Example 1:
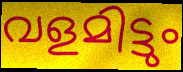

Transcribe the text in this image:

വളമിട്ടും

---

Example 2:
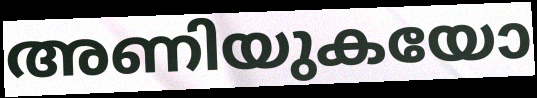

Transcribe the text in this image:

അണിയുകയോ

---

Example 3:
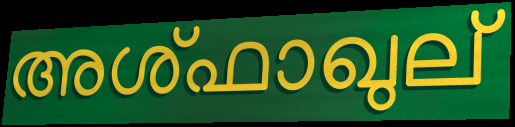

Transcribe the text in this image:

അശ്ഫാഖുല്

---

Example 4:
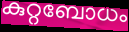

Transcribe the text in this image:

കുറ്റബോധം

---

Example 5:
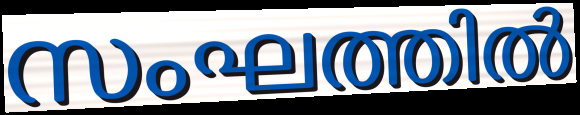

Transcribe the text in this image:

സംഘത്തിൽ